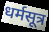
धर्मसूत्र